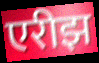
एरीझ